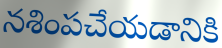
నశింపచేయడానికి